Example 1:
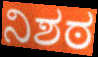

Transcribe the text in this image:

ನಿಶಠ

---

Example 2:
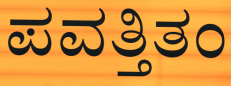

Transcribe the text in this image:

ಪವತ್ತಿತಂ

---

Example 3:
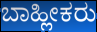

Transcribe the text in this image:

ಬಾಹ್ಲೀಕರು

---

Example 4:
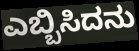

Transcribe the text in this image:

ಎಬ್ಬಿಸಿದನು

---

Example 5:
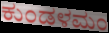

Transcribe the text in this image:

ಕುಂಡಳಮಂ